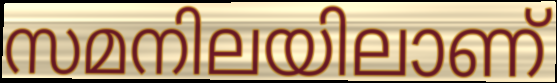
സമനിലയിലാണ്